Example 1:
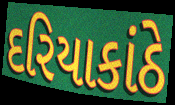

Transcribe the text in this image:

દરિયાકાંઠે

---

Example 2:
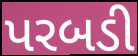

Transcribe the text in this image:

પરબડી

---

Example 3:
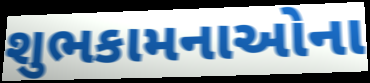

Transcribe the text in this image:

શુભકામનાઓના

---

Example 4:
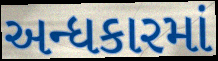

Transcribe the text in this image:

અન્ધકારમાં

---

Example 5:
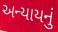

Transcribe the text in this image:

અન્યાયનું